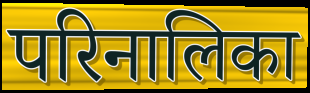
परिनालिका